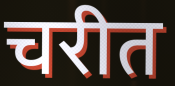
चरीत